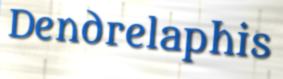
Dendrelaphis